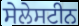
ਸੇਲੇਸਟੀਨ